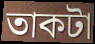
তাকটা